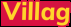
Villag